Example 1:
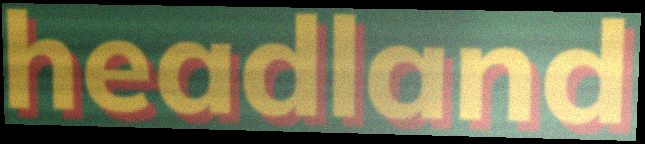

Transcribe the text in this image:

headland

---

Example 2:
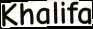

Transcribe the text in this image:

Khalifa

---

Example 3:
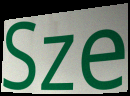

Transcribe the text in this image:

Sze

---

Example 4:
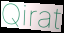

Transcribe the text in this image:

Qirat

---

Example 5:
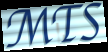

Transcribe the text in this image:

MTS